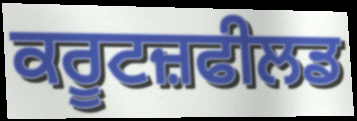
ਕਰੂਟਜ਼ਫੀਲਡ